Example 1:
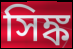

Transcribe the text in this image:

সিঙ্ক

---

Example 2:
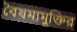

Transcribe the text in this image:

বৈষম্যমুক্তির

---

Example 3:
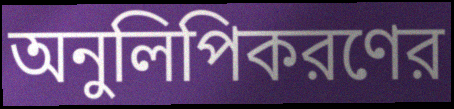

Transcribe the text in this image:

অনুলিপিকরণের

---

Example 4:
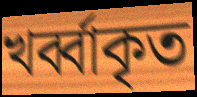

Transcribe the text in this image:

খর্ব্বাকৃত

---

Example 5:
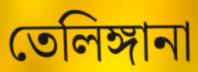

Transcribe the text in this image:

তেলিঙ্গানা